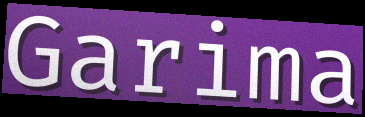
Garima